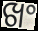
ଖଂ